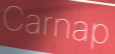
Carnap